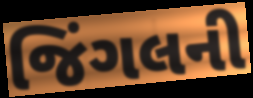
જિંગલની